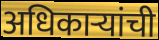
अधिकार्‍यांची